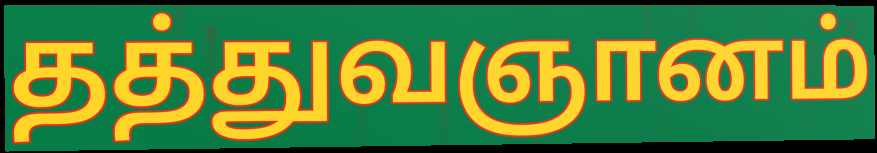
தத்துவஞானம்